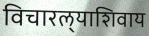
विचारल्याशिवाय